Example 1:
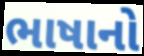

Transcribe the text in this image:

ભાષાનો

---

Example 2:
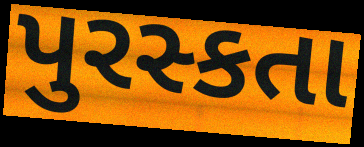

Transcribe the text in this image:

પુરસ્કતા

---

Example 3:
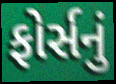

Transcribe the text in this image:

ફોર્સનું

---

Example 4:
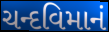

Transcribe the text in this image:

ચન્દવિમાનં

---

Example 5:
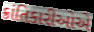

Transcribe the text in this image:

ક્રાંતિકારીઓએ